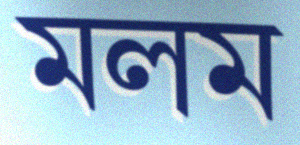
মলম